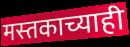
मस्तकाच्याही